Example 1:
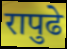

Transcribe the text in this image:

रापुढे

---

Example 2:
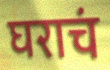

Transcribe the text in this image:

घराचं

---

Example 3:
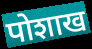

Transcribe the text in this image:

पोशाख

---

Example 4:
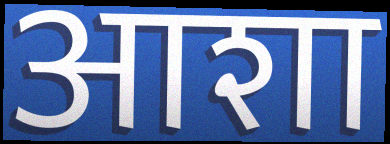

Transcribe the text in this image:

आशा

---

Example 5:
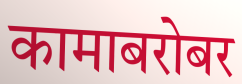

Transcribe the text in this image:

कामाबरोबर